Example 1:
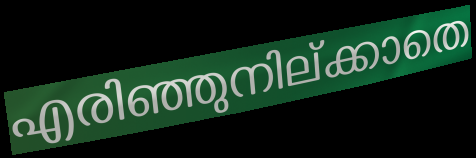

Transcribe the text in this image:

എരിഞ്ഞുനില്ക്കാതെ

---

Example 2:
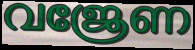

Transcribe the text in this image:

വജ്രേണ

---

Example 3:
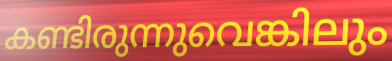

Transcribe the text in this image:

കണ്ടിരുന്നുവെങ്കിലും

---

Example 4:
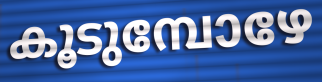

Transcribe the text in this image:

കൂടുമ്പോഴേ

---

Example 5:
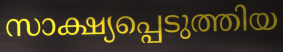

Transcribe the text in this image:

സാക്ഷ്യപ്പെടുത്തിയ